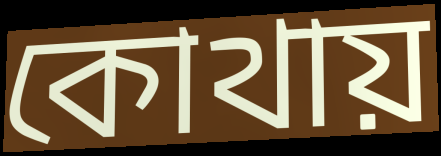
কোথায়